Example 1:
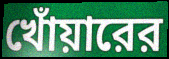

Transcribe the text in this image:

খোঁয়ারের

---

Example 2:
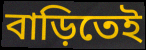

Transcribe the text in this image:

বাড়িতেই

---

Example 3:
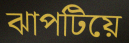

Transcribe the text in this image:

ঝাপটিয়ে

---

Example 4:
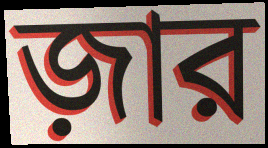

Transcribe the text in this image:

জ়ার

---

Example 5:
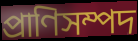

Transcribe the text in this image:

প্রাণিসম্পদ